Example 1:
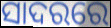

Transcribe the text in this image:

ସାଦରରେ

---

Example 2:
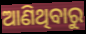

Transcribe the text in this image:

ଆଣିଥିବାରୁ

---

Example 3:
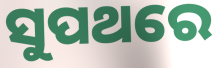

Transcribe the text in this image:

ସୁପଥରେ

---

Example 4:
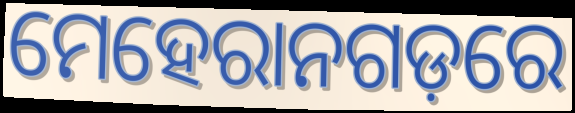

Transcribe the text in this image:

ମେହେରାନଗଡ଼ରେ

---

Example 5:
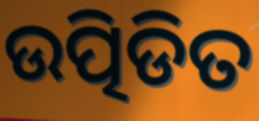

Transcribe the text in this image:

ଉତ୍ପିଡିତ